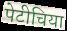
पेटीचिया